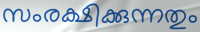
സംരക്ഷിക്കുന്നതും